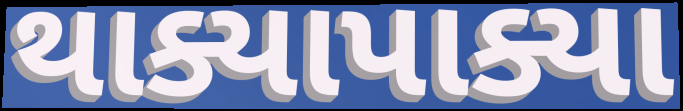
થાક્યાપાક્યા